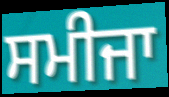
ਸਮੀਜਾ